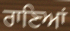
ਰਾਣਿਆਂ